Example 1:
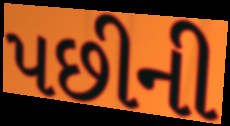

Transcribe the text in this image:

પછીની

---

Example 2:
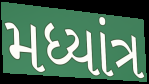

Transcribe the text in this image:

મધ્યાંત્ર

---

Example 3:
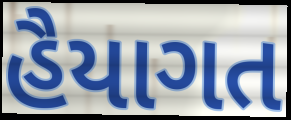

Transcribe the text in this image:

હૈયાગત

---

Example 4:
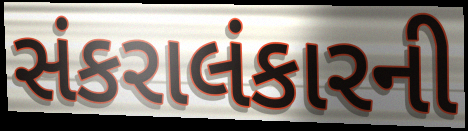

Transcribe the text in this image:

સંકરાલંકારની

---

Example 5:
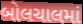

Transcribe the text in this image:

બોલચાલમાં